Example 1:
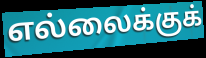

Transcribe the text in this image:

எல்லைக்குக்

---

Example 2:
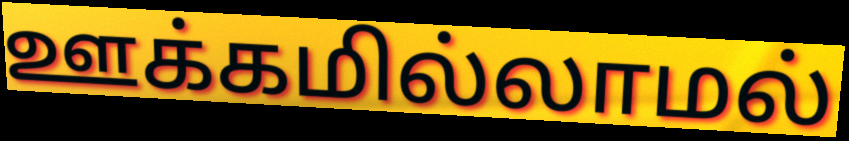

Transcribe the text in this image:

ஊக்கமில்லாமல்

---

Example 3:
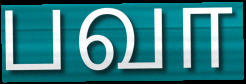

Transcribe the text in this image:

பவா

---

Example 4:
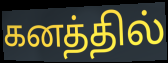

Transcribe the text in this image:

கனத்தில்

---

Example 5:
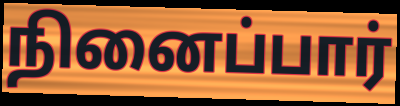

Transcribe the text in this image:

நினைப்பார்